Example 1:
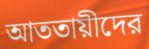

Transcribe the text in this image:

আততায়ীদের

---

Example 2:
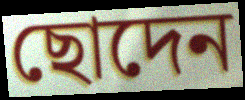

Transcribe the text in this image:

ছোদেন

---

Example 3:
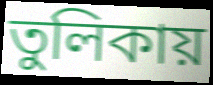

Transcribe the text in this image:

তুলিকায়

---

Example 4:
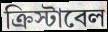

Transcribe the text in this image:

ক্রিস্টাবেল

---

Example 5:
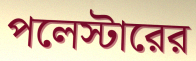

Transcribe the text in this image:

পলেস্টারের